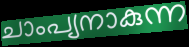
ചാംപ്യനാകുന്ന